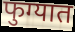
फुग्यात